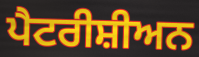
ਪੈਟਰੀਸ਼ੀਅਨ